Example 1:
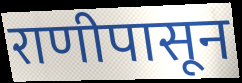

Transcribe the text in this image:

राणीपासून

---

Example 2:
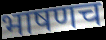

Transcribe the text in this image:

भाषणच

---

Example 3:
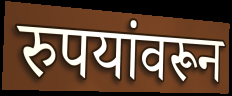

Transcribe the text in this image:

रुपयांवरून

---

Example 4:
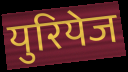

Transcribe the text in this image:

युरियेज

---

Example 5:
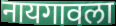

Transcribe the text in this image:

नायगावला